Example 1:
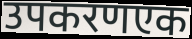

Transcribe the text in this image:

उपकरणएक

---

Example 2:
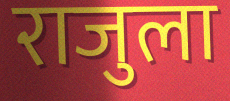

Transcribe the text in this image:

राजुला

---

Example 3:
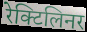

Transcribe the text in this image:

रेक्टिलिनर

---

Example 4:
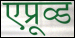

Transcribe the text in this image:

एप्रूव्ड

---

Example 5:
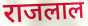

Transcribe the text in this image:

राजलाल